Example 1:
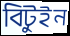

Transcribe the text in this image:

বিটুইন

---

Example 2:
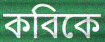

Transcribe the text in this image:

কবিকে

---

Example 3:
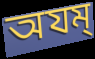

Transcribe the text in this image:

অযম্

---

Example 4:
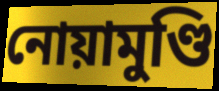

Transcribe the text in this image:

নোয়ামুণ্ডি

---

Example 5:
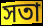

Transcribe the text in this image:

সতা